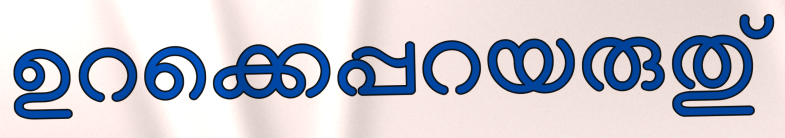
ഉറക്കെപ്പറയരുതു്